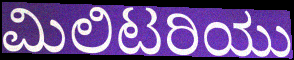
ಮಿಲಿಟರಿಯು